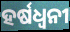
ହର୍ଷଧ୍ୱନୀ